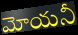
మోయనీ